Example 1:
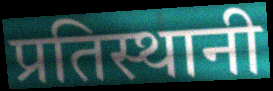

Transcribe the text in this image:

प्रतिस्थानी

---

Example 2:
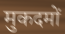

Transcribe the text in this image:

मुकदमों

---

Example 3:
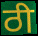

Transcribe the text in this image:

ठी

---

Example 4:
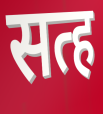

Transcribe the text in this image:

सत्ह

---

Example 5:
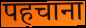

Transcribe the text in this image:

पहचाना